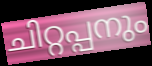
ചിറ്റപ്പനും